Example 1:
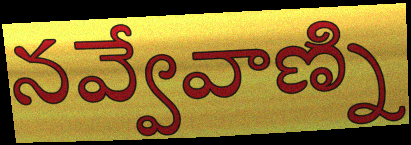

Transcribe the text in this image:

నవ్వేవాణ్ని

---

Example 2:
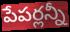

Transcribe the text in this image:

పేపర్లన్నీ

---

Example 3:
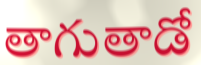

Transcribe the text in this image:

తాగుతాడో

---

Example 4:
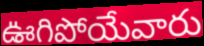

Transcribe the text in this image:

ఊగిపోయేవారు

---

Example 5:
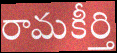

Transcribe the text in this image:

రామకీర్తి